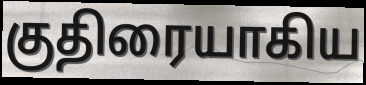
குதிரையாகிய